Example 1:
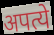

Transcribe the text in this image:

अपत्ये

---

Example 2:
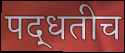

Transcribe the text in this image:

पद्धतीच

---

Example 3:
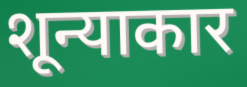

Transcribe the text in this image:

शून्याकार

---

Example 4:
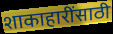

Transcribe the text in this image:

शाकाहारींसाठी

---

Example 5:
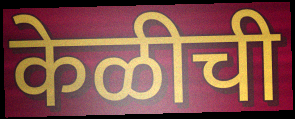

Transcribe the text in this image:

केळीची